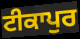
ਟੀਕਾਪੁਰ